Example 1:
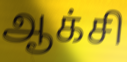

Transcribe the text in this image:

ஆக்சி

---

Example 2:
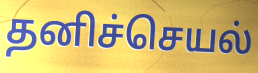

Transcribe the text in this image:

தனிச்செயல்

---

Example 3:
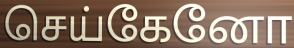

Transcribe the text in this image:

செய்கேனோ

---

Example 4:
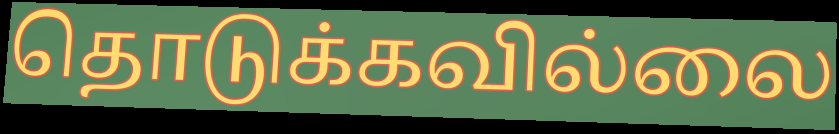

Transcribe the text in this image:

தொடுக்கவில்லை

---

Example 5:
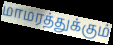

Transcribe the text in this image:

மாமரத்துக்கும்